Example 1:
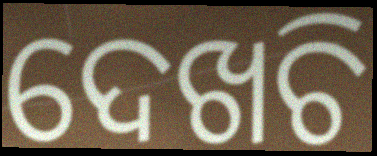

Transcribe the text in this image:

ଦେଖଚି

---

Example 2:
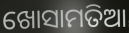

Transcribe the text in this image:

ଖୋସାମତିଆ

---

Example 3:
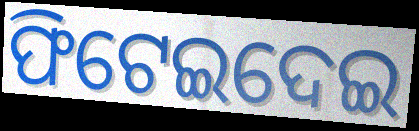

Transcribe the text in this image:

ଫିଟେଇଦେଇ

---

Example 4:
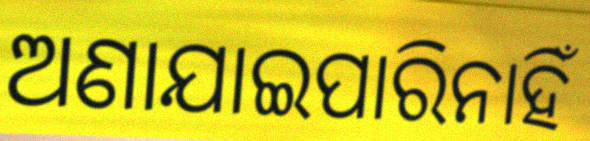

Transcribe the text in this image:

ଅଣାଯାଇପାରିନାହିଁ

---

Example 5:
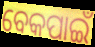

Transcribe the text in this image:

ବେକପାଇଁ